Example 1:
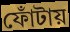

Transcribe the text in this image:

ফোঁটায়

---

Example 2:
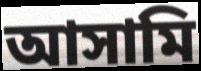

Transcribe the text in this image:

আসামি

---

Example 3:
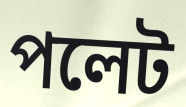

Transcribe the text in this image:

পলেট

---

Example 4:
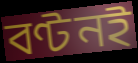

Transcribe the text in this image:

বণ্টনই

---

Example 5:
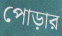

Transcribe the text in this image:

পোড়ার